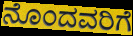
ನೊಂದವರಿಗೆ